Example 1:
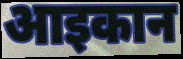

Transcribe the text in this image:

आइकान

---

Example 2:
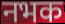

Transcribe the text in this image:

नभक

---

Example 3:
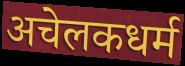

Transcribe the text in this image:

अचेलकधर्म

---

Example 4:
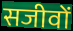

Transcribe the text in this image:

सजीवों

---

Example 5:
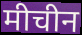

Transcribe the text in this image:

मीचीन